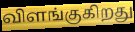
விளங்குகிறது